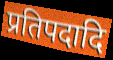
प्रतिपदादि